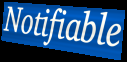
Notifiable